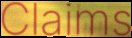
Claims